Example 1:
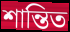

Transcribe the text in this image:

শান্তিত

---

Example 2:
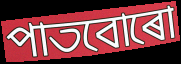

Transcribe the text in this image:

পাতবোৰো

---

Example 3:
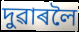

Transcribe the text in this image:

দুৱাৰলৈ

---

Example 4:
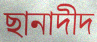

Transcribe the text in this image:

ছানাদীদ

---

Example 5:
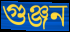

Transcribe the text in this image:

গুঞ্জন